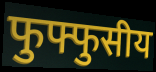
फुफ्फुसीय